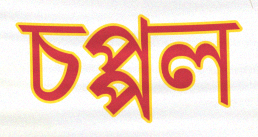
চপ্পল